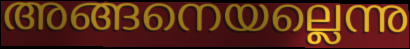
അങ്ങനെയല്ലെന്നു